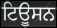
ਟਿਊਸਨ